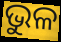
ଭୁଳ